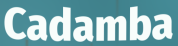
Cadamba